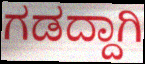
ಗಡದ್ದಾಗಿ